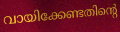
വായിക്കേണ്ടതിന്റെ